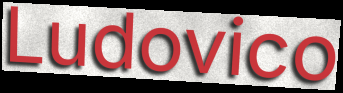
Ludovico